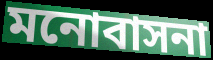
মনোবাসনা